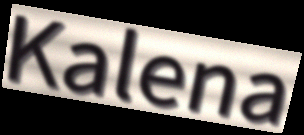
Kalena